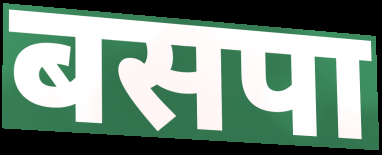
बसपा